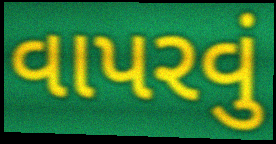
વાપરવું